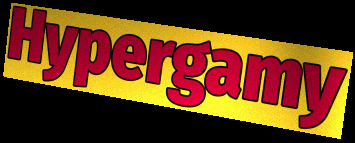
Hypergamy